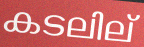
കടലില്